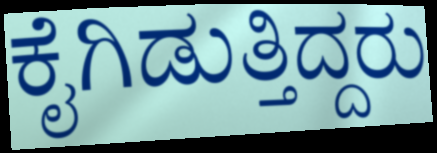
ಕೈಗಿಡುತ್ತಿದ್ದರು